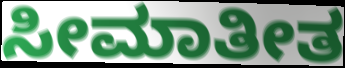
ಸೀಮಾತೀತ